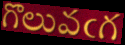
గొలువఁగ